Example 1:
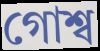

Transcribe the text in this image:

গোশ্ব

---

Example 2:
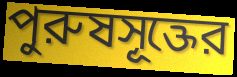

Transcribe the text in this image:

পুরুষসূক্তের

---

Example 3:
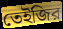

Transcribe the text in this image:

তেইজির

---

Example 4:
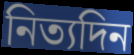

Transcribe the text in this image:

নিত্যদিন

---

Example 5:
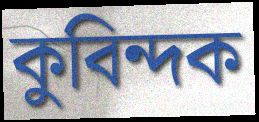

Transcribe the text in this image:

কুবিন্দক